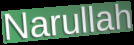
Narullah